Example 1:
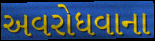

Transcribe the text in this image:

અવરોધવાના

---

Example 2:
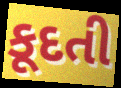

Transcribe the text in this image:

કૂદતી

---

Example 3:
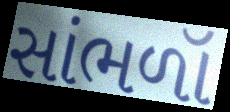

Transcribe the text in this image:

સાંભળૉ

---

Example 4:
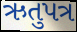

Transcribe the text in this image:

ઋતુપત્ર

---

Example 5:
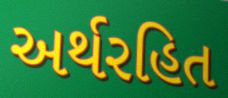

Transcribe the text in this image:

અર્થરહિત